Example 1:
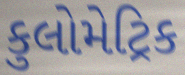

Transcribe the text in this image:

કુલોમેટ્રિક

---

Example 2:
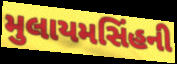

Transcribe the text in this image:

મુલાયમસિંહની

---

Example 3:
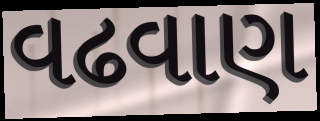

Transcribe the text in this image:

વઢવાણ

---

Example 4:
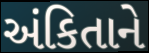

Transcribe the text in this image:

અંકિતાને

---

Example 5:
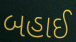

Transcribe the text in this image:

બહાઈ